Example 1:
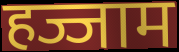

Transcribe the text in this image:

हज्जाम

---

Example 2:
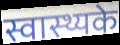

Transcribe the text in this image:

स्वास्थ्यके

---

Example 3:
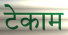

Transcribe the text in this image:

टेकाम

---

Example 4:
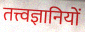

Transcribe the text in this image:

तत्त्वज्ञानियों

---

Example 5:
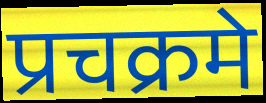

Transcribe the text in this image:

प्रचक्रमे